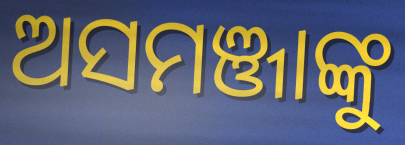
ଅସମଞ୍ଜାଙ୍କୁ